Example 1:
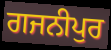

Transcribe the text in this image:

ਗਜਨੀਪੁਰ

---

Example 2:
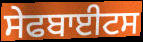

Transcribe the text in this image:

ਸੇਫਬਾਈਟਸ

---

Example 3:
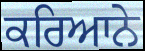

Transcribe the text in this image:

ਕਰਿਆਨੇ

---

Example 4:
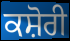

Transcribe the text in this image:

ਕਸ਼ੋਰੀ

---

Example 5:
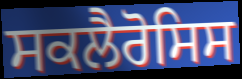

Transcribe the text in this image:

ਸਕਲੈਰੋਸਿਸ